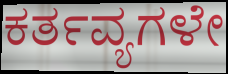
ಕರ್ತವ್ಯಗಳೇ